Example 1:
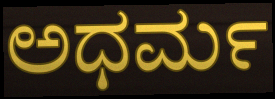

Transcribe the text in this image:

ಅಧರ್ಮ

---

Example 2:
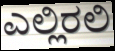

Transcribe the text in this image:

ಎಲ್ಲಿರಲಿ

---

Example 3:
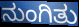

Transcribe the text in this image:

ನುಂಗಿತು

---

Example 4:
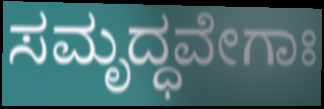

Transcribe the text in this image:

ಸಮೃದ್ಧವೇಗಾಃ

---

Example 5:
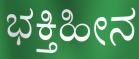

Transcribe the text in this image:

ಭಕ್ತಿಹೀನ